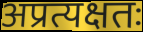
अप्रत्यक्षतः